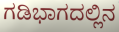
ಗಡಿಭಾಗದಲ್ಲಿನ